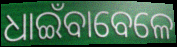
ଧାଇଁବାବେଳେ